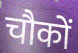
चौकों